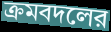
ক্রমবদলের